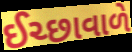
ઈચ્છાવાળે